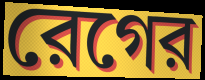
রেগের